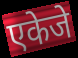
एकेजे